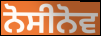
ਨੋਸੀਨੋਵ